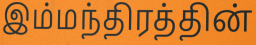
இம்மந்திரத்தின்